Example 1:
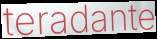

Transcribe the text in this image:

teradante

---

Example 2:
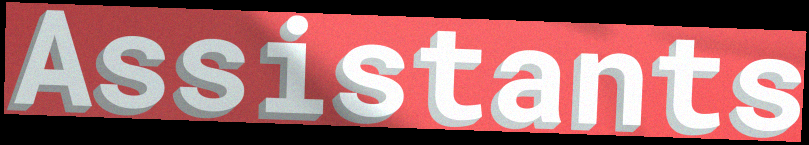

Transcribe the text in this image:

Assistants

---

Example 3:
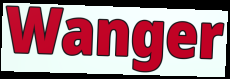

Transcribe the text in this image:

Wanger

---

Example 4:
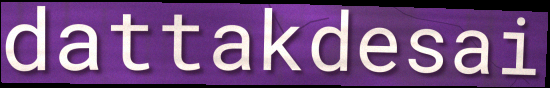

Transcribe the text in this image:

dattakdesai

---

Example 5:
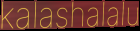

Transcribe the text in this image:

kalashalalu